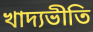
খাদ্যভীতি